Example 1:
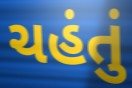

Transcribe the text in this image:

ચહંતું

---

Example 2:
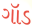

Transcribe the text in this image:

ગૉડ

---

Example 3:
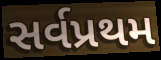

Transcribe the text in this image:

સર્વપ્રથમ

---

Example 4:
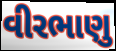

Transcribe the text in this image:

વીરભાણુ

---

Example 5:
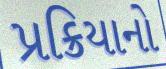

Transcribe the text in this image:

પ્રક્રિયાનો